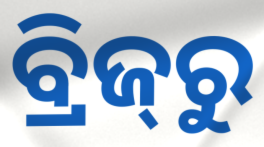
ବ୍ରିଜ୍‌ରୁ